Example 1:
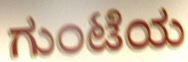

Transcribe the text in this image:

ಗುಂಟೆಯ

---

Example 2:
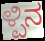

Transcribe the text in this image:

ಳ್ಪಿನ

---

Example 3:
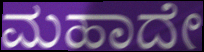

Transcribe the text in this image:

ಮಹಾದೇ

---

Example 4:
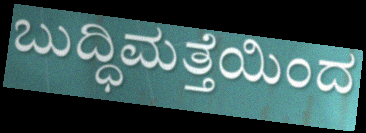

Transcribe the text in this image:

ಬುದ್ಧಿಮತ್ತೆಯಿಂದ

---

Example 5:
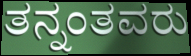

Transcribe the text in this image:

ತನ್ನಂತವರು